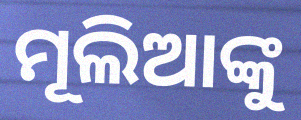
ମୂଲିଆଙ୍କୁ